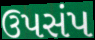
ઉપસંપ